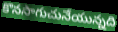
కొనసాగుచునేయున్నది